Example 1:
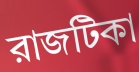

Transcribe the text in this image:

রাজটিকা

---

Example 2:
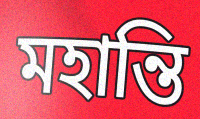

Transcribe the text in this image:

মহান্তি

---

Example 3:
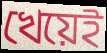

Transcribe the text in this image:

খেয়েই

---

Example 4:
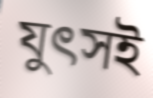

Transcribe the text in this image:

যুৎসই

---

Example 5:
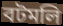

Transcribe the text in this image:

বটমলি